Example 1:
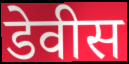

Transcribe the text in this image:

डेवीस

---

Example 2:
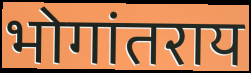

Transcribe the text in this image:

भोगांतराय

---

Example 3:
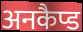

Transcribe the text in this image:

अनकैप्ड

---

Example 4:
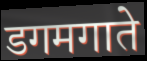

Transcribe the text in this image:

डगमगाते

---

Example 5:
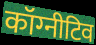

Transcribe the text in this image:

कॉग्‍नीटिव